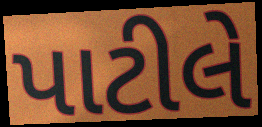
પાટીલે